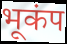
भूकंप